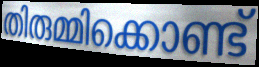
തിരുമ്മിക്കൊണ്ട്